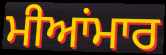
ਮੀਆਂਮਾਰ